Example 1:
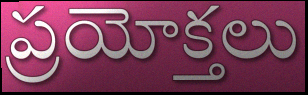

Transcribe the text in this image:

ప్రయోక్తలు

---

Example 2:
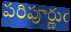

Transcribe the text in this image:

పరిపూర్ణుఁ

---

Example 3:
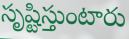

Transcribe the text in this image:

సృష్టిస్తుంటారు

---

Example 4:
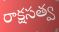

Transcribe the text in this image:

రాక్షసత్వ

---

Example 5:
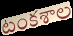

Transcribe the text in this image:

టంకశాల